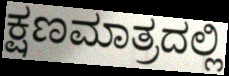
ಕ್ಷಣಮಾತ್ರದಲ್ಲಿ